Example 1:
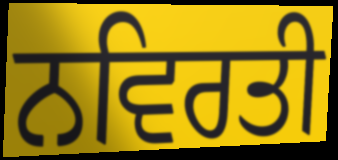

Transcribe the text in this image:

ਨਵਿਰਤੀ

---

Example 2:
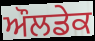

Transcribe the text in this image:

ਔਲਡੇਕ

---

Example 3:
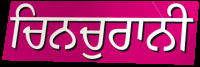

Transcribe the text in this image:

ਚਿਨਚੁਰਾਨੀ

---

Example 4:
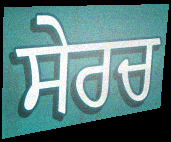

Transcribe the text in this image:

ਸੇਰਚ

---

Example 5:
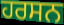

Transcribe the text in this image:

ਹਰਸਨ